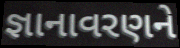
જ્ઞાનાવરણને